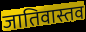
जातिवास्तव